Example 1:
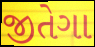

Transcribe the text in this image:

જીતેગા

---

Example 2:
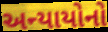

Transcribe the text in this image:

અન્યાયોનો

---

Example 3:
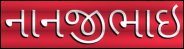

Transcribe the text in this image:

નાનજીભાઇ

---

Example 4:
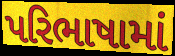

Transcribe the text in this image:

પરિભાષામાં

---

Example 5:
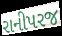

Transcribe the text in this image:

રાનીપરજ